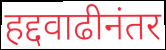
हद्दवाढीनंतर